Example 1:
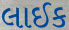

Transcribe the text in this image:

લાઈક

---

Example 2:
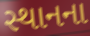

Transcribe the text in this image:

સ્થાનના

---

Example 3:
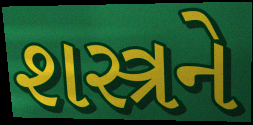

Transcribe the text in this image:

શસ્ત્રને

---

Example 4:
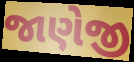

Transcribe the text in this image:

જાણેજી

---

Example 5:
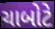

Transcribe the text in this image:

ચાબોટે